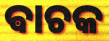
ଵାଚକ